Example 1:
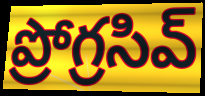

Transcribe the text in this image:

ప్రోగ్రసివ్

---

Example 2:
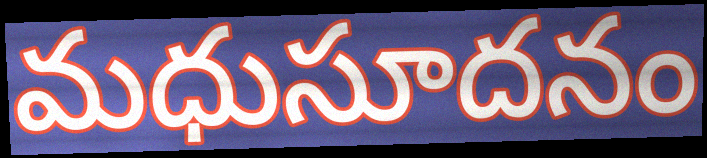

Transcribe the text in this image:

మధుసూదనం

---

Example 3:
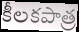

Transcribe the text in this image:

కీలకపాత్ర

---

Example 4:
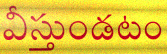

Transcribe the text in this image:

వీస్తుండటం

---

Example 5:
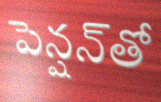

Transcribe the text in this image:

పెన్షన్‌తో